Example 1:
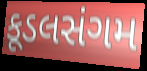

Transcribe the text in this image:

કૂડલસંગમ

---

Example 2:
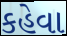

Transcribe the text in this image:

કહેવા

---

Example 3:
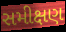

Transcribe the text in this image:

સમીક્ષણ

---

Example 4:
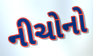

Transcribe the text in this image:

નીચોનો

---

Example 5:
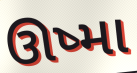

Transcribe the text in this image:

ઊષ્મા